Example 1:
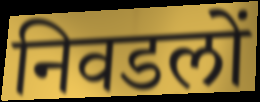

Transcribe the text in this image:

निवडलों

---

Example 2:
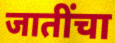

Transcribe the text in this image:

जातींचा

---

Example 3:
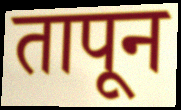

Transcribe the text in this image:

तापून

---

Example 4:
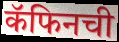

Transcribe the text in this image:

कॅफिनची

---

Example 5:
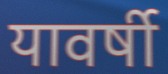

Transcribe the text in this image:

यावर्षी